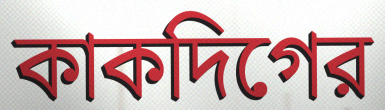
কাকদিগের